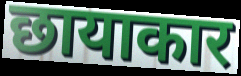
छायाकार